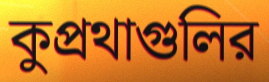
কুপ্রথাগুলির